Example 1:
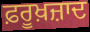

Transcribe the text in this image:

ਫ਼ਰੂਖ਼ਜ਼ਾਦ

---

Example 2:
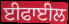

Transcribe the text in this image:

ਈਫਾਈਲ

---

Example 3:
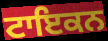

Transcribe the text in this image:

ਟਾਇਕਨ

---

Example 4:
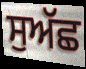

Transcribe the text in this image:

ਸੁਅੱਛ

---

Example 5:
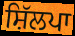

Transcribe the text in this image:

ਸ਼ਿੱਲਪਾ